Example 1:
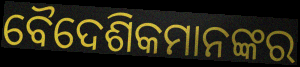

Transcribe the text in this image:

ବୈଦେଶିକମାନଙ୍କର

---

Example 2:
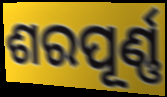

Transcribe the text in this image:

ଶରପୂର୍ଣ୍ଣ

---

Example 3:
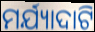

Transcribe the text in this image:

ମର୍ଯ୍ୟାଦାଟି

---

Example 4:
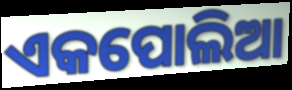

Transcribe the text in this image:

ଏକପୋଲିଆ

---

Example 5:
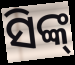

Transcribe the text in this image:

ସିଙ୍କ୍